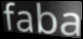
faba